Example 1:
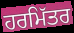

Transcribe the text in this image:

ਹਰਮਿੱਤਰ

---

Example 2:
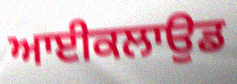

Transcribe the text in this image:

ਆਈਕਲਾਉਡ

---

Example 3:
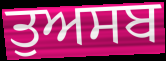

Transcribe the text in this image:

ਤੁਅਸਬ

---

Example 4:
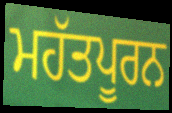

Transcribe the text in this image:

ਮਹੱਤਪੂਰਨ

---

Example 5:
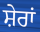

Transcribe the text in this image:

ਸ਼ੇਰਾਂ